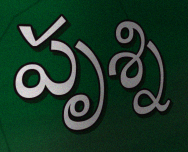
పృశ్ని